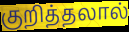
குறித்தலால்